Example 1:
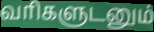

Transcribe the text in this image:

வரிகளுடனும்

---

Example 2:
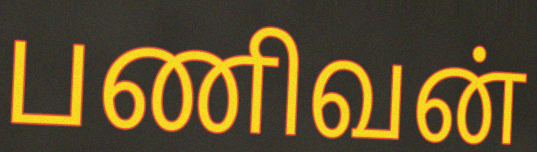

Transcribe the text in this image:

பணிவன்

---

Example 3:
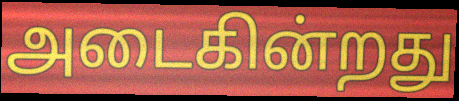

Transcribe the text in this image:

அடைகின்றது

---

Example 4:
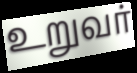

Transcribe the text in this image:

உறுவர்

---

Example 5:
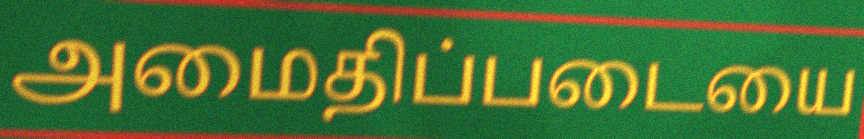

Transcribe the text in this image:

அமைதிப்படையை